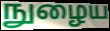
நுழைய